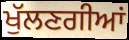
ਖੁੱਲਣਗੀਆਂ